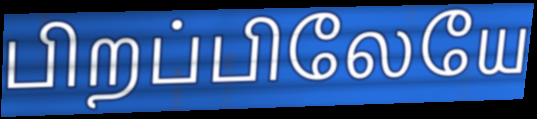
பிறப்பிலேயே